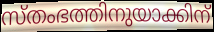
സ്തംഭത്തിനുയാക്കിന്